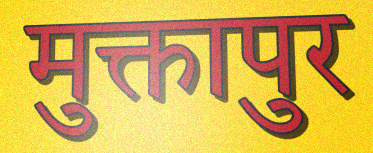
मुक्तापुर